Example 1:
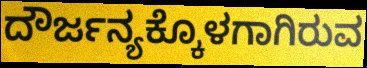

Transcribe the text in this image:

ದೌರ್ಜನ್ಯಕ್ಕೊಳಗಾಗಿರುವ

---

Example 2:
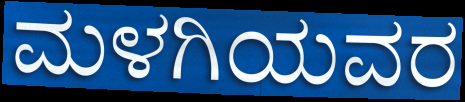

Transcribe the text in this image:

ಮಳಗಿಯವರ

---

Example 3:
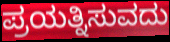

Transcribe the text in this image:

ಪ್ರಯತ್ನಿಸುವದು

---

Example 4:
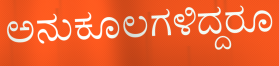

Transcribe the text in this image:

ಅನುಕೂಲಗಳಿದ್ದರೂ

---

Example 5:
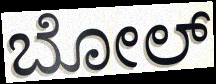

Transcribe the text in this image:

ಬೋಲ್